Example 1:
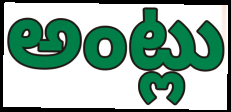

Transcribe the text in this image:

అంట్లు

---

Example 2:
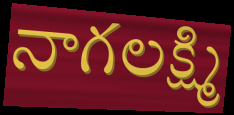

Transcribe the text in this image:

నాగలక్ష్మి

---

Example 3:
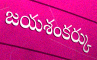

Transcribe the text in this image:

జయశంకర్కు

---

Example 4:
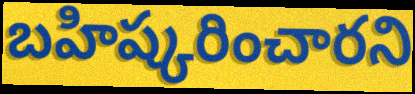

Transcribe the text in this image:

బహిష్కరించారని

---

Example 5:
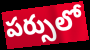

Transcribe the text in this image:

పర్సులో